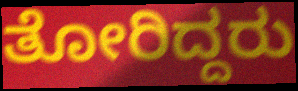
ತೋರಿದ್ದರು